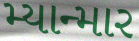
મ્યાન્માર